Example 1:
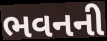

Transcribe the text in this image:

ભવનની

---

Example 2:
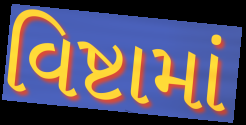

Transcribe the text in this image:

વિષ્ટામાં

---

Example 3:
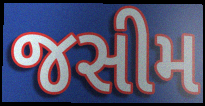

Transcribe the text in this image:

જસીમ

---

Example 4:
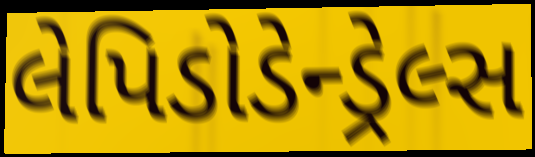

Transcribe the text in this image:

લેપિડોડેન્ડ્રેલ્સ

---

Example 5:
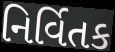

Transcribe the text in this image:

નિર્વિતક